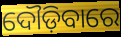
ଦୌଡ଼ିବାରେ